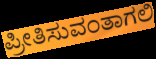
ಪ್ರೀತಿಸುವಂತಾಗಲಿ